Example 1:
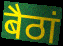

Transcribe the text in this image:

बैठां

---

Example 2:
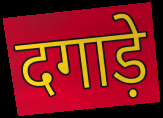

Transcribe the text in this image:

दगाड़े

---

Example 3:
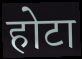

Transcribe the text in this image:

होटा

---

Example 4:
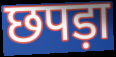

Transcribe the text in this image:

छपड़ा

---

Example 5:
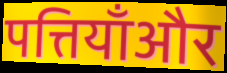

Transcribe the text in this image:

पत्तियाँऔर